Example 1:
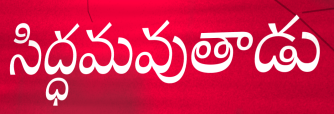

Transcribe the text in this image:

సిద్ధమవుతాడు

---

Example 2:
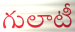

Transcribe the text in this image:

గులాటీ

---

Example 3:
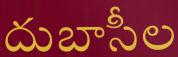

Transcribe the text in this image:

దుబాసీల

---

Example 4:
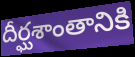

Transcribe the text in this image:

దీర్ఘశాంతానికి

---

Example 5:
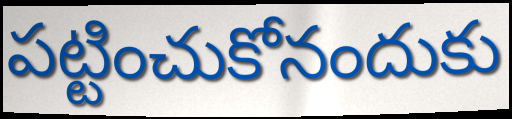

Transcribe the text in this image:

పట్టించుకోనందుకు